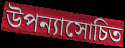
উপন্যাসোচিত